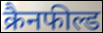
क्रैनफील्ड